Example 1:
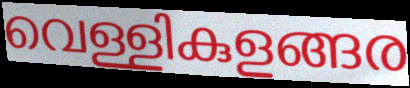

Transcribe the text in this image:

വെള്ളികുളങ്ങര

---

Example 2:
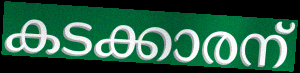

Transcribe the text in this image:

കടക്കാരന്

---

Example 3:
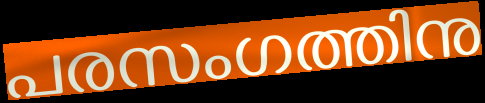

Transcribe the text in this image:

പരസംഗത്തിനു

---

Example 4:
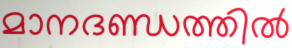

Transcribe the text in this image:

മാനദണ്ഡത്തിൽ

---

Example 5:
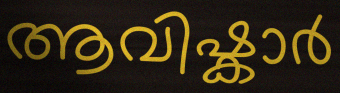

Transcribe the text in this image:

ആവിഷ്കാർ